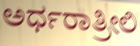
ಅರ್ಧರಾತ್ರೀಲಿ